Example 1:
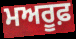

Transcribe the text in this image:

ਮਅਰੂਫ਼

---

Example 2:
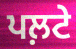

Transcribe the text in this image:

ਪਲ਼ਟੇ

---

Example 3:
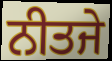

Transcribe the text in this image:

ਨੀਤਜੇ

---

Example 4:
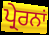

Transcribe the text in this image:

ਪ੍ਰੇਰਨਾਂ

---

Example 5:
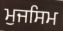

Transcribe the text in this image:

ਮੁਜਸਿਮ